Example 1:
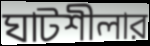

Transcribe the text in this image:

ঘাটশীলার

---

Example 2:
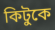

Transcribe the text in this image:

কিটুকে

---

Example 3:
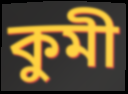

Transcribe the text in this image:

কুমী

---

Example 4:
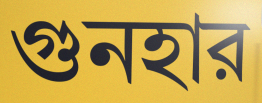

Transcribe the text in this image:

গুনহার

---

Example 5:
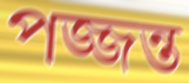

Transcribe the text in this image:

পজ্জন্ত